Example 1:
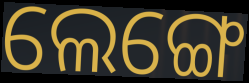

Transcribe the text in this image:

ଲେଙ୍ଗେ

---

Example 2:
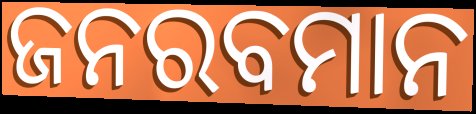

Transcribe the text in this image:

ଜନରବମାନ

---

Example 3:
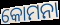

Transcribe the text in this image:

କୋମନା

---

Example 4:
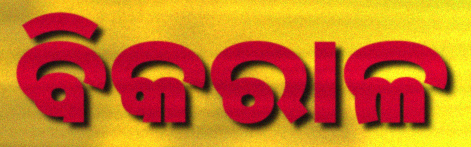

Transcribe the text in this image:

ବିକରାଳ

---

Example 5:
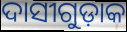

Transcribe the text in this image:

ଦାସୀଗୁଡ଼ାକ